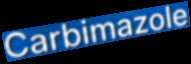
Carbimazole